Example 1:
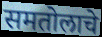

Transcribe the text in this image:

समतोलाचे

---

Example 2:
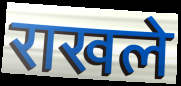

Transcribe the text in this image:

राखले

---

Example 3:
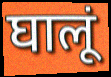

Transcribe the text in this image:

घालूं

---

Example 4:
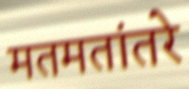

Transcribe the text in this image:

मतमतांतरे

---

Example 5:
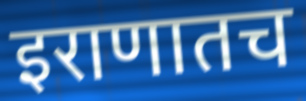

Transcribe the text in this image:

इराणातच